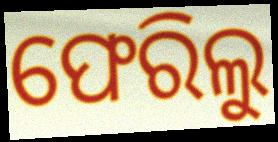
ଫେରିଲୁ